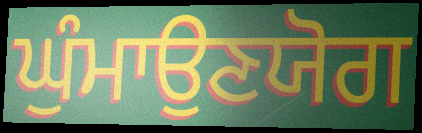
ਘੁੰਮਾਉਣਯੋਗ